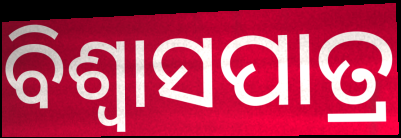
ବିଶ୍ୱାସପାତ୍ର